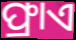
ଫ୍ରାଏ